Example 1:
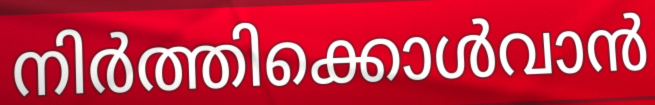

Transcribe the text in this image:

നിർത്തിക്കൊൾവാൻ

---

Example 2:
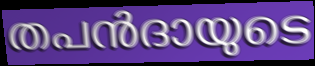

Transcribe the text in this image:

തപൻദായുടെ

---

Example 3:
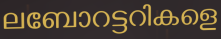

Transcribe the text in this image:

ലബോറട്ടറികളെ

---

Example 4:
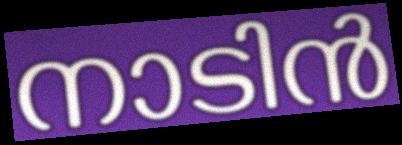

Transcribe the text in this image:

നാടിൻ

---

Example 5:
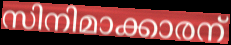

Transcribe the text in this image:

സിനിമാക്കാരന്